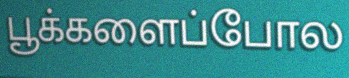
பூக்களைப்போல